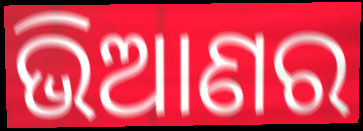
ଭିଆଣର